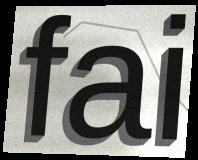
fai